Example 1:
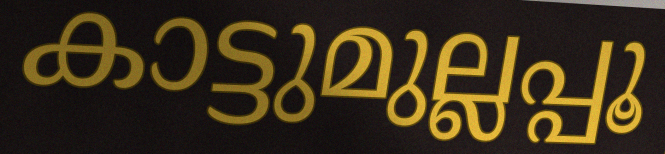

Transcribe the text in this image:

കാട്ടുമുല്ലപ്പൂ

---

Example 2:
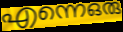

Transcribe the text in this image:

എന്നെഒരു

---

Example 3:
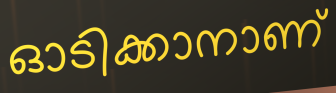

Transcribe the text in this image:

ഓടിക്കാനാണ്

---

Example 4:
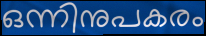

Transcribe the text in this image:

ഒന്നിനുപകരം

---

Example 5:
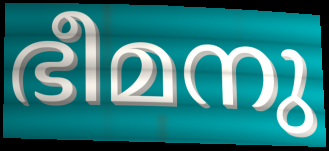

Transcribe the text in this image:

ഭീമനു